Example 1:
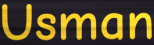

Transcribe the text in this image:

Usman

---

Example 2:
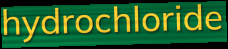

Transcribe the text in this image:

hydrochloride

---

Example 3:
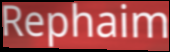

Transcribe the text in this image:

Rephaim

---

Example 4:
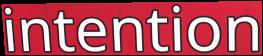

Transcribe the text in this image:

intention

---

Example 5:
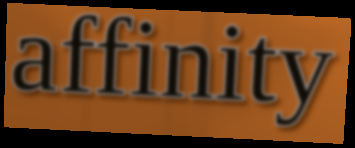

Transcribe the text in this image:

affinity